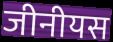
जीनीयस